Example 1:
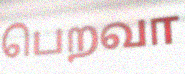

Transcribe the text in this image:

பெறவா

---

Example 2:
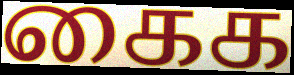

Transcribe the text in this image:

கைக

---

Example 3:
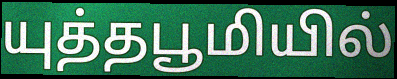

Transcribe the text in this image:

யுத்தபூமியில்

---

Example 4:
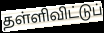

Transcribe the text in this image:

தள்ளிவிட்டுப்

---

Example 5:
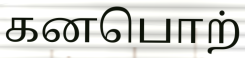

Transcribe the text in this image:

கனபொற்